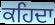
ਕਹਿਦਾ